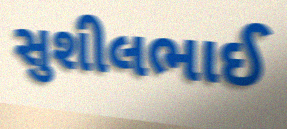
સુશીલભાઈ